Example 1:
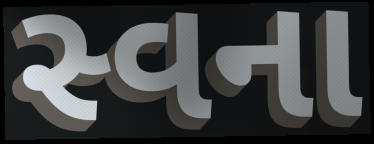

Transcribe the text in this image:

સ્વના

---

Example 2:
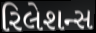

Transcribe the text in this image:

રિલેશન્સ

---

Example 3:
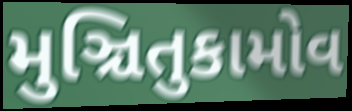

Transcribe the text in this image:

મુઞ્ચિતુકામોવ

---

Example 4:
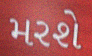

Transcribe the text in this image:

મરશે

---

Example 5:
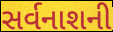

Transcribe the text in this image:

સર્વનાશની